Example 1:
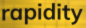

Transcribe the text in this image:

rapidity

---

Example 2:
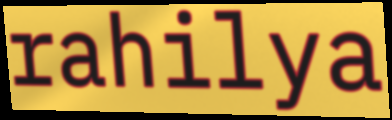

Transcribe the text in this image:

rahilya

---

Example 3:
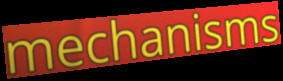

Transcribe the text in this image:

mechanisms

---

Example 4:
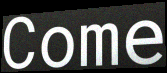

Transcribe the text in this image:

Come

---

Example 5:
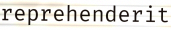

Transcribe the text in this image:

reprehenderit